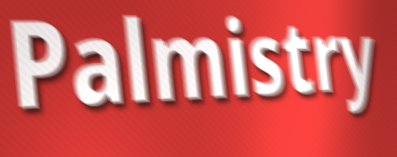
Palmistry